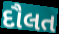
દૌલત